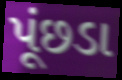
પૂંછડા